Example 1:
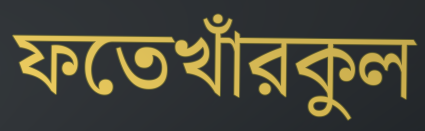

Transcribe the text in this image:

ফতেখাঁরকুল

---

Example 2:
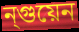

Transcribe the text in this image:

ন্গুয়েন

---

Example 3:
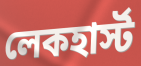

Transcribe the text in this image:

লেকহার্স্ট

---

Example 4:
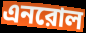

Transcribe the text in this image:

এনরোল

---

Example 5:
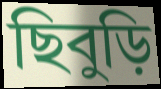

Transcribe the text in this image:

ছিবুড়ি